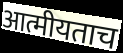
आत्मीयताच